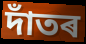
দাঁতৰ